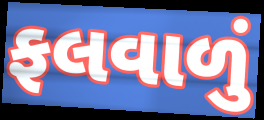
ફલવાળું